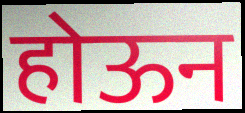
होऊन